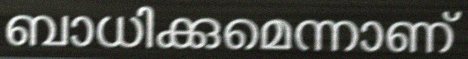
ബാധിക്കുമെന്നാണ്